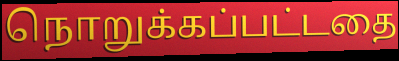
நொறுக்கப்பட்டதை